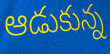
ఆడుకున్న